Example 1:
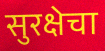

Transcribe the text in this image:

सुरक्षेचा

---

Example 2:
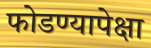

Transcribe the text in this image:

फोडण्यापेक्षा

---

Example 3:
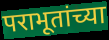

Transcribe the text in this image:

पराभूतांच्या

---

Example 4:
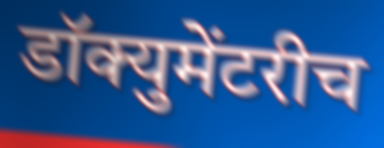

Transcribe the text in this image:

डॉक्युमेंटरीच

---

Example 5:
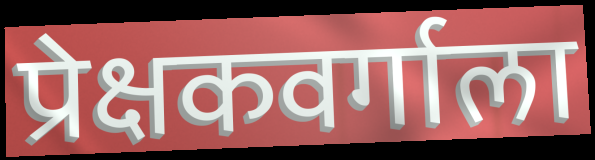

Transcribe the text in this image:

प्रेक्षकवर्गाला